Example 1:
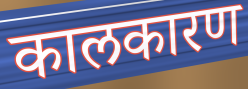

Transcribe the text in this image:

कालकारण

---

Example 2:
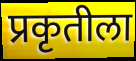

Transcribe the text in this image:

प्रकृतीला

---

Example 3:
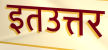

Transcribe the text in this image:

इतउत्तर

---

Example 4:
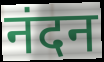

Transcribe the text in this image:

नंदन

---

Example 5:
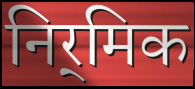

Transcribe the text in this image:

निर्मिक